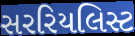
સરરિયલિસ્ટ